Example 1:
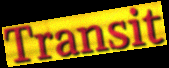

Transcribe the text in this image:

Transit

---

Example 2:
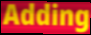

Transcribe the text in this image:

Adding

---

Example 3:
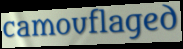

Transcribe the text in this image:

camouflaged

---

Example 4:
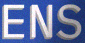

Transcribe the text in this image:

ENS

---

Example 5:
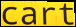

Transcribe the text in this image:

cart